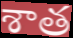
శాత